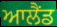
ਆਲੈਂਡ